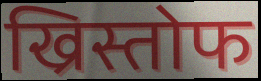
ख्रिस्तोफ